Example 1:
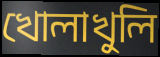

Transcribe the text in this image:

খোলাখুলি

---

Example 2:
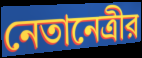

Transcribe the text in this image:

নেতানেত্রীর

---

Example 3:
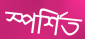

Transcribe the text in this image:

স্পর্শিত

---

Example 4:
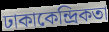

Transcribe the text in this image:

ঢাকাকেন্দ্রিকতা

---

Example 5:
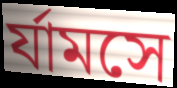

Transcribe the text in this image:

র্যামসে